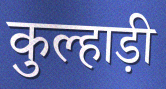
कुल्हाड़ी